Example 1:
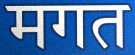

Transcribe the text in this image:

मगत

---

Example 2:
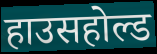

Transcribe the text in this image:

हाउसहोल्ड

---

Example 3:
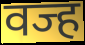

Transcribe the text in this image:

वज्ह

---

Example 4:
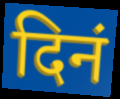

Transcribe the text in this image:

दिनं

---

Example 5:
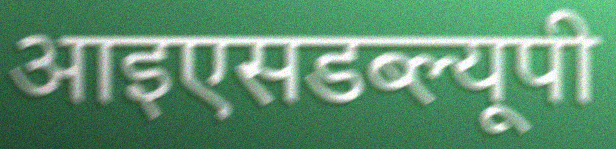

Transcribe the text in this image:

आइएसडब्ल्यूपी